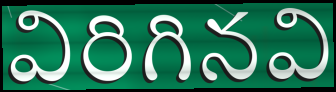
విరిగినవి